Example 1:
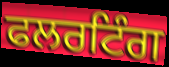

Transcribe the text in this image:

ਫਲਰਟਿੰਗ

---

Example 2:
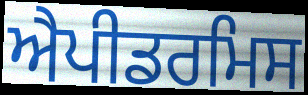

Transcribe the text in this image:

ਐਪੀਡਰਮਿਸ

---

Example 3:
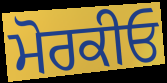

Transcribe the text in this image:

ਮੋਰਕੀਓ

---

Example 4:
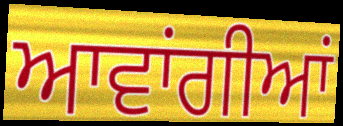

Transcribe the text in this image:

ਆਵਾਂਗੀਆਂ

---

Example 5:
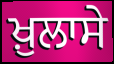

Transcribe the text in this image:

ਖ਼ੁਲਾਸੇ